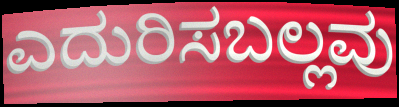
ಎದುರಿಸಬಲ್ಲವು